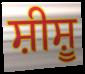
ਸ਼ੀਸ਼ੂ